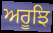
ਅਰੂਝਿ